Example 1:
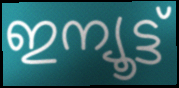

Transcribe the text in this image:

ഇന്യൂട്ട്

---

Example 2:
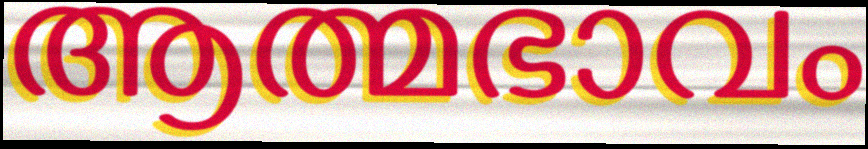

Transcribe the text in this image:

ആത്മഭാവം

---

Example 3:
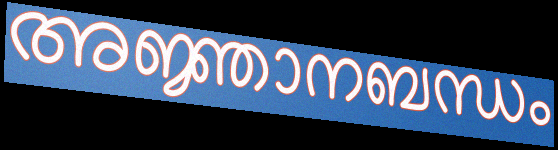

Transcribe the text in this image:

അജ്ഞാനബന്ധം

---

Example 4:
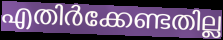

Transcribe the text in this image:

എതിർക്കേണ്ടതില്ല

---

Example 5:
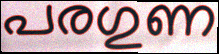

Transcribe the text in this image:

പരഗുണ